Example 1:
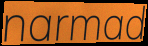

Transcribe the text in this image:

narmad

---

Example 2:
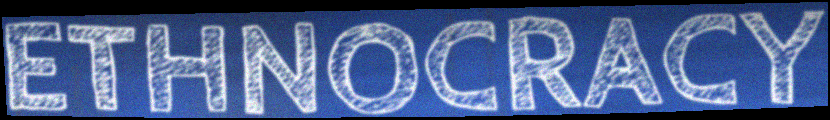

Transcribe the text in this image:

ETHNOCRACY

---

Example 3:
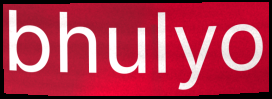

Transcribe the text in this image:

bhulyo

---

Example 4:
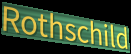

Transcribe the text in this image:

Rothschild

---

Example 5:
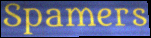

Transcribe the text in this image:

Spamers